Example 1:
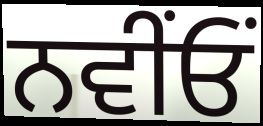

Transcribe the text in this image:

ਨਵੀਂਓਂ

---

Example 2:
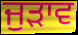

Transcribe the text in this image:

ਜੁੜਾਵ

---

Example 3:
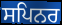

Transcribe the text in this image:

ਸਪਿਨਰ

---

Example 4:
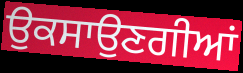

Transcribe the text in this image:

ਉਕਸਾਉਣਗੀਆਂ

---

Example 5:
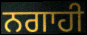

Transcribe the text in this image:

ਨਗਾਹੀ